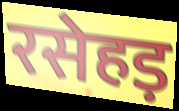
रसेहड़